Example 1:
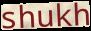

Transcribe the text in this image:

shukh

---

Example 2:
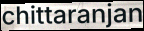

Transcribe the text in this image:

chittaranjan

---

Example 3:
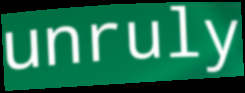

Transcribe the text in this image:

unruly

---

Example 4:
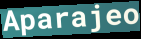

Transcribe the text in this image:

Aparajeo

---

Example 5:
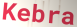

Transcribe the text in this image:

Kebra